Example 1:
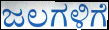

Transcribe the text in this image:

ಜಲಗಳಿಗೆ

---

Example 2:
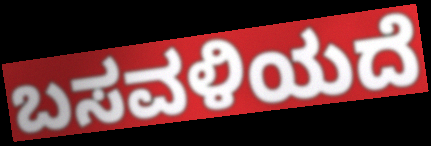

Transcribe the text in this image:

ಬಸವಳಿಯದೆ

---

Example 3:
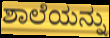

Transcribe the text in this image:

ಶಾಲೆಯನ್ನು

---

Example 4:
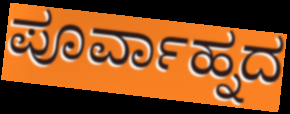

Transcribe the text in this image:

ಪೂರ್ವಾಹ್ನದ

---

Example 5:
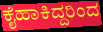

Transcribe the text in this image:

ಕೈಹಾಕಿದ್ದರಿಂದ